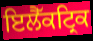
ਇਲੈੱਕਟ੍ਰਿਕ